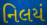
નિલયં